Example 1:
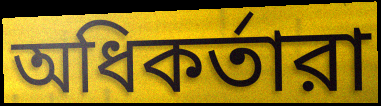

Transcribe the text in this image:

অধিকর্তারা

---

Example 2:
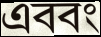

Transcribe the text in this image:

এববং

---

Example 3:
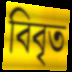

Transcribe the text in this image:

বিবৃত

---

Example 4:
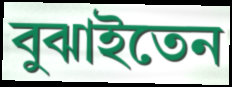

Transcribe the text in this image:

বুঝাইতেন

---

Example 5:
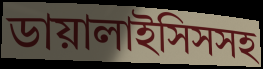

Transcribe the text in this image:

ডায়ালাইসিসসহ